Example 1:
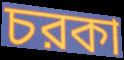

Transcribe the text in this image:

চরকা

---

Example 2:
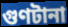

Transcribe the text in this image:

গুণটানা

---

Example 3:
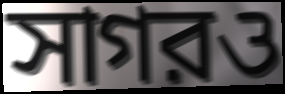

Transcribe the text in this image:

সাগরও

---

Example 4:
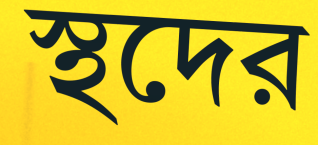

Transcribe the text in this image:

স্থদের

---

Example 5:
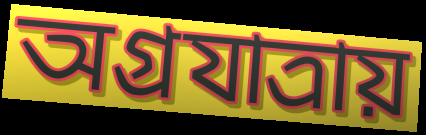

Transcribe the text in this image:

অগ্রযাত্রায়